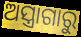
ଅସ୍ତ୍ରାଗାରୁ